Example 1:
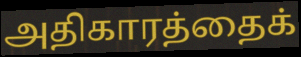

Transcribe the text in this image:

அதிகாரத்தைக்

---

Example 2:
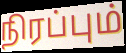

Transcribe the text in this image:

நிரப்பும்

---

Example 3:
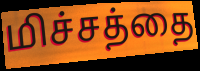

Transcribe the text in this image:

மிச்சத்தை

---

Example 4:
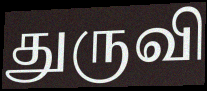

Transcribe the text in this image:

துருவி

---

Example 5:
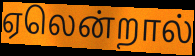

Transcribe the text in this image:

ஏலென்றால்